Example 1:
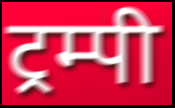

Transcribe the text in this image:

ट्रम्पी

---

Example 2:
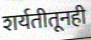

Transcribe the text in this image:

शर्यतीतूनही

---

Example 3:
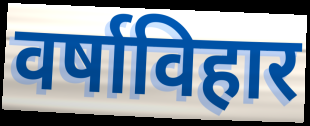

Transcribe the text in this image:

वर्षाविहार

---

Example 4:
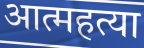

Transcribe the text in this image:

आत्महत्या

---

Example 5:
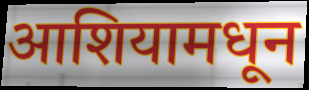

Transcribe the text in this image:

आशियामधून